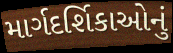
માર્ગદર્શિકાઓનું